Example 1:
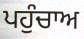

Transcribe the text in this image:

ਪਹੁੰਚਾਅ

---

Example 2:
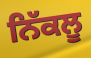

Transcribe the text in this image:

ਨਿੱਕਲੂ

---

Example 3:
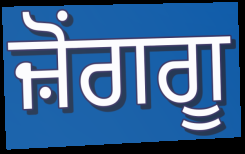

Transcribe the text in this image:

ਜ਼ੋਂਗਗੂ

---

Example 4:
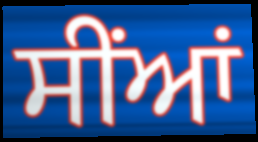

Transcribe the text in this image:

ਸੀਂਆਂ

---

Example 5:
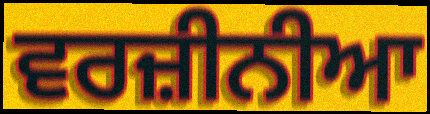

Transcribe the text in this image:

ਵਰਜ਼ੀਨੀਆ